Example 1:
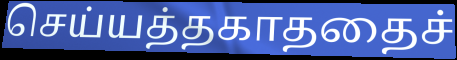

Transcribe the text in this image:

செய்யத்தகாததைச்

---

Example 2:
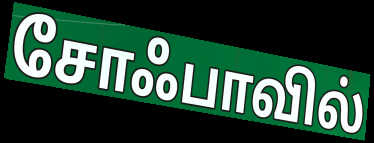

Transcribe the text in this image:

சோஃபாவில்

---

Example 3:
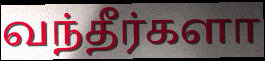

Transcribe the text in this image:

வந்தீர்களா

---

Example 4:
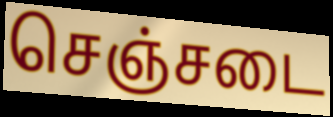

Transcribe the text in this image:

செஞ்சடை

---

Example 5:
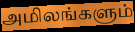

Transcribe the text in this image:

அமிலங்களும்